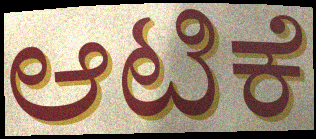
ಆಟಿಕೆ